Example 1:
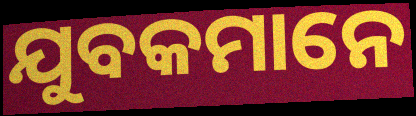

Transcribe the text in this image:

ଯୁବକମାନେ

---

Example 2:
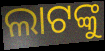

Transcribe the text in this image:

ଲାଟଙ୍କୁ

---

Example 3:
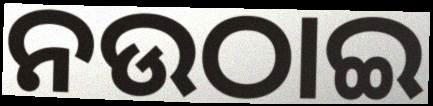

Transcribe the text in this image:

ନଉଠାଇ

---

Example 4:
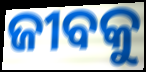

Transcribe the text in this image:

ଜୀବକୁ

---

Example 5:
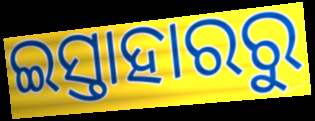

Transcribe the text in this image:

ଇସ୍ତାହାରରୁ